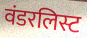
वंडरलिस्ट